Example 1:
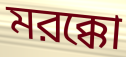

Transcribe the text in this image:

মরক্কো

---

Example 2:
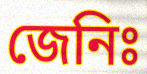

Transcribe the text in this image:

জেনিঃ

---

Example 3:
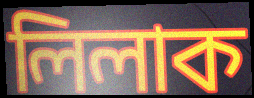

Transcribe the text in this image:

লিলাক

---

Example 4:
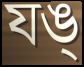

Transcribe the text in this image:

যঙ্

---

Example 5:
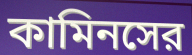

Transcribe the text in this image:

কামিনসের